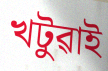
খটুৱাই